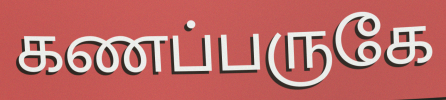
கணப்பருகே